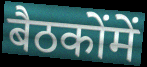
बैठकोंमें